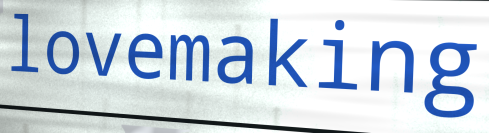
lovemaking